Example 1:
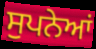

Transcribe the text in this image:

ਸੁਪਨੇਆਂ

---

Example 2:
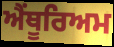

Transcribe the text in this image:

ਐਂਥੂਰਿਅਮ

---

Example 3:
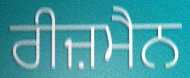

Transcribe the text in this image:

ਰੀਜ਼ਮੈਨ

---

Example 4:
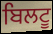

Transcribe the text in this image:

ਬਿਲਟੂ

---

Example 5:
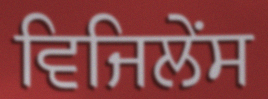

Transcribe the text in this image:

ਵਿਜਿਲੇਂਸ